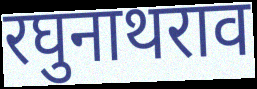
रघुनाथराव